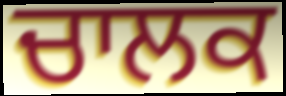
ਚਾਲਕ